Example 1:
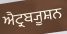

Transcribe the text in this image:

ਐਟ੍ਰਬ੍ਯੂਸ਼ਨ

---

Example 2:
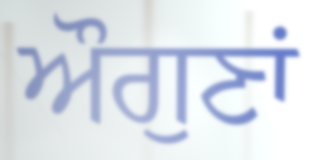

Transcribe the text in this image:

ਔਗੁਣਾਂ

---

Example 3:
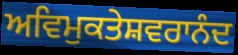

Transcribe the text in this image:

ਅਵਿਮੁਕਤੇਸ਼ਵਰਾਨੰਦ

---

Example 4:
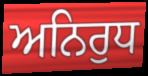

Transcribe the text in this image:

ਅਨਿਰੁਧ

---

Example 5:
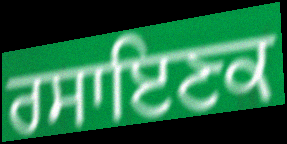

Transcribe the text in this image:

ਰਸਾਇਣਕ